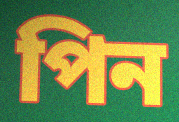
পিন